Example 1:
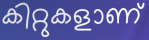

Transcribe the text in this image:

കിറ്റുകളാണ്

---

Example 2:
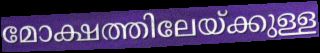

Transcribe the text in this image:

മോക്ഷത്തിലേയ്ക്കുള്ള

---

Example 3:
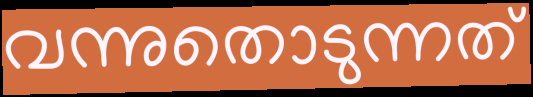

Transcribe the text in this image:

വന്നുതൊടുന്നത്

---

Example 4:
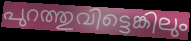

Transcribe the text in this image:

പുറത്തുവിട്ടെങ്കിലും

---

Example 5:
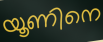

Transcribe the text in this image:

യൂണിനെ